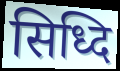
सिध्दि